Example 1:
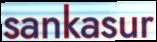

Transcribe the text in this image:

sankasur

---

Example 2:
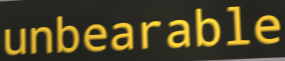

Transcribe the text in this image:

unbearable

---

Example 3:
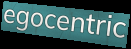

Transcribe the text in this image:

egocentric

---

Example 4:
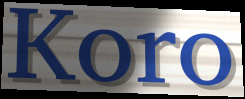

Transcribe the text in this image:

Koro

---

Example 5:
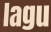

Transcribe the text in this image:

lagu